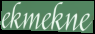
ekmekne